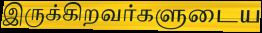
இருக்கிறவர்களுடைய